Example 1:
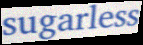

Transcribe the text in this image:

sugarless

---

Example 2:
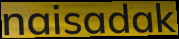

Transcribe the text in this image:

naisadak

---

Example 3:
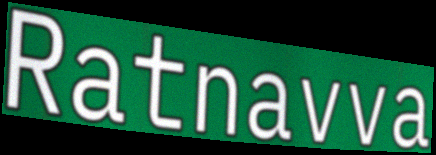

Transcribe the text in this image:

Ratnavva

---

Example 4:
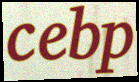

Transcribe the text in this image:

cebp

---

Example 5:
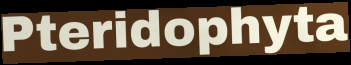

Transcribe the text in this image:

Pteridophyta